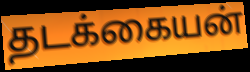
தடக்கையன்